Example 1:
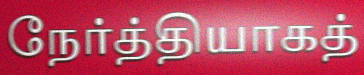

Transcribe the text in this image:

நேர்த்தியாகத்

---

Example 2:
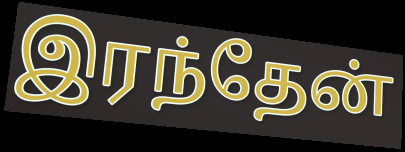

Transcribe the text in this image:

இரந்தேன்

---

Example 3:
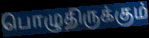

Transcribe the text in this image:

பொழுதிருக்கும்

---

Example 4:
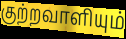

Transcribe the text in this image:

குற்றவாளியும்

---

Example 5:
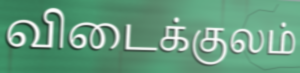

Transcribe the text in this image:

விடைக்குலம்